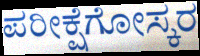
ಪರೀಕ್ಷೆಗೋಸ್ಕರ